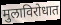
मुलाविरोधात